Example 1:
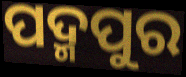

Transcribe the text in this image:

ପଦ୍ମପୁର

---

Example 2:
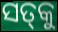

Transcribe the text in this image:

ସତ୍‌କୁ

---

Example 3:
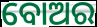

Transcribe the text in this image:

ବୋଅର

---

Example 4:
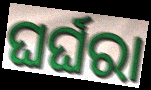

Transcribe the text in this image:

ଘର୍ଘରା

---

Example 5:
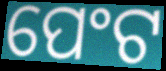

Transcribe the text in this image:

ପେଂଟ